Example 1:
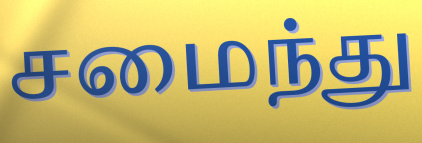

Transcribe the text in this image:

சமைந்து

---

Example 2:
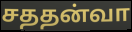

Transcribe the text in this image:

சததன்வா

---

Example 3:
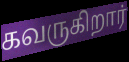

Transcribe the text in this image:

கவருகிறார்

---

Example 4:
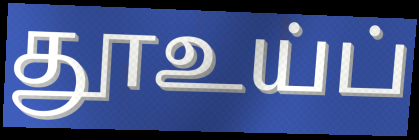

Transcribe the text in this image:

தூஉய்ப்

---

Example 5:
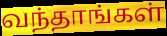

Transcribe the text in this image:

வந்தாங்கள்